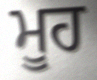
ਮੂਹ